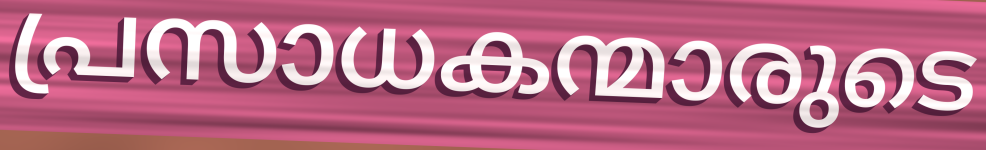
പ്രസാധകന്മാരുടെ